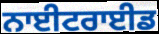
ਨਾਈਟਰਾਈਡ